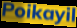
Poikayil